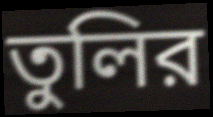
তুলির